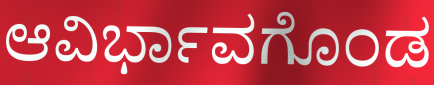
ಆವಿರ್ಭಾವಗೊಂಡ